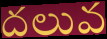
దలువ